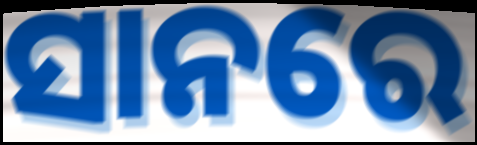
ସାନରେ